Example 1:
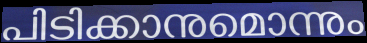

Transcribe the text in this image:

പിടിക്കാനുമൊന്നും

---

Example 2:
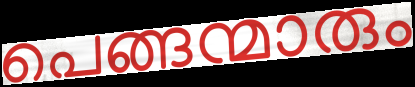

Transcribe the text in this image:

പെങ്ങന്മാരും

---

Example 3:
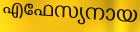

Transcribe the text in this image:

എഫേസ്യനായ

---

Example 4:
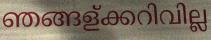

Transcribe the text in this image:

ഞങ്ങള്ക്കറിവില്ല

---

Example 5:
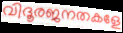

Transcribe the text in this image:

വിദൂരജനതകളേ